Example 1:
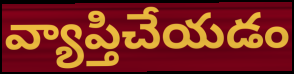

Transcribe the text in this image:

వ్యాప్తిచేయడం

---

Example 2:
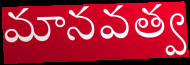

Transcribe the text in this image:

మానవత్వ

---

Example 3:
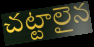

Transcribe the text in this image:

చట్టాలైన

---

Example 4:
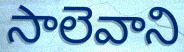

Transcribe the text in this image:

సాలెవాని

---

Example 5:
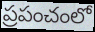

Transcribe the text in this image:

ప్రపంచంలో